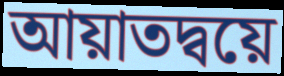
আয়াতদ্বয়ে